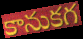
కానుకగ